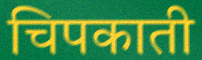
चिपकाती